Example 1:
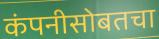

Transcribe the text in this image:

कंपनीसोबतचा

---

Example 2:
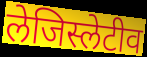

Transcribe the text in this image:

लेजिस्लेटीव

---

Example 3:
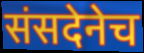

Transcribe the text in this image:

संसदेनेच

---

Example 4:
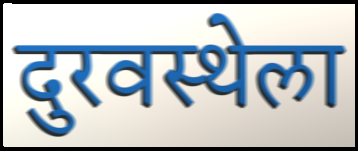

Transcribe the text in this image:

दुरवस्थेला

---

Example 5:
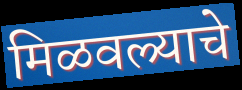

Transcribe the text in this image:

मिळवल्याचे